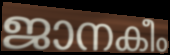
ജാനകീം